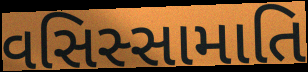
વસિસ્સામાતિ